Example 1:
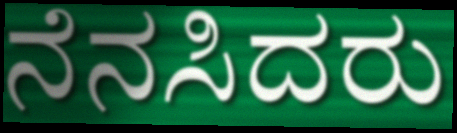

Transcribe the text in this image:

ನೆನಸಿದರು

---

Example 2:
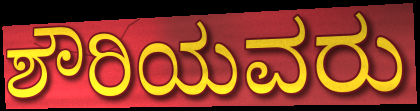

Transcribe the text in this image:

ಶೌರಿಯವರು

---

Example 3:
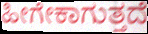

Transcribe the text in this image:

ಹೀಗೇಕಾಗುತ್ತದೆ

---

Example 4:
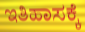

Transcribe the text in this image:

ಇತಿಹಾಸಕ್ಕೆ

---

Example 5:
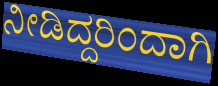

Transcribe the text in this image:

ನೀಡಿದ್ದರಿಂದಾಗಿ